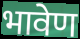
भावेण